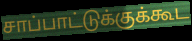
சாப்பாட்டுக்குக்கூட